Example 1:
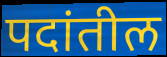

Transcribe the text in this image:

पदांतील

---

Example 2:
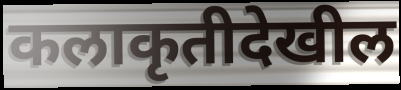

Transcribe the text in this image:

कलाकृतीदेखील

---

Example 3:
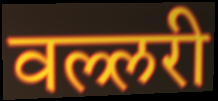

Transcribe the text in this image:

वल्लरी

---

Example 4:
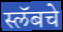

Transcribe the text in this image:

स्लॅबचे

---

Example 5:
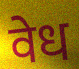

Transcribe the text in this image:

वेध